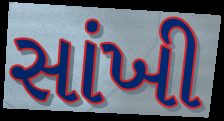
સાંખી